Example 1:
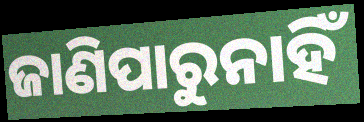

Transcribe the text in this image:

ଜାଣିପାରୁନାହିଁ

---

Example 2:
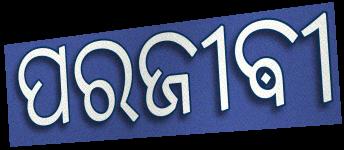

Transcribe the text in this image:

ପରଜୀଵୀ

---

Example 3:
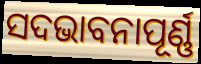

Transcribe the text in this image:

ସଦଭାବନାପୂର୍ଣ୍ଣ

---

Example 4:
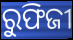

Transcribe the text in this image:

ରୁଫିଜୀ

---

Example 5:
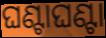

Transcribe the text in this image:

ଘଣ୍ଟାଘଣ୍ଟା